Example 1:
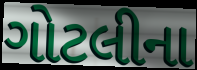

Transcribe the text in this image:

ગોટલીના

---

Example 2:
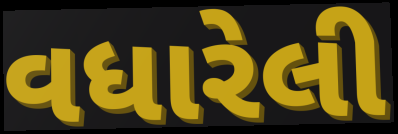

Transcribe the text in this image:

વધારેલી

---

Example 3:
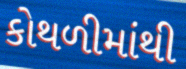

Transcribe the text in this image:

કોથળીમાંથી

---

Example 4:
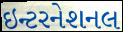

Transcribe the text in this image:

ઇન્ટરનેશનલ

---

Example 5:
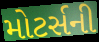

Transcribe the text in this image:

મોટર્સની